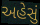
અહેસું